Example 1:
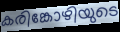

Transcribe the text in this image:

കരിങ്കോഴിയുടെ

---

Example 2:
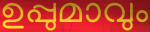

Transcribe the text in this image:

ഉപ്പുമാവും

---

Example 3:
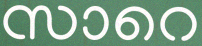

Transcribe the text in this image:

സാറെ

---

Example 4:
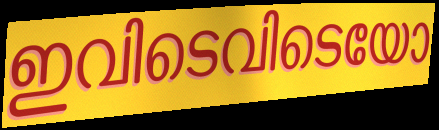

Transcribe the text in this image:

ഇവിടെവിടെയോ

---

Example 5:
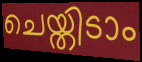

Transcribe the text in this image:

ചെയ്തിടാം